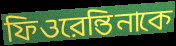
ফিওরেন্তিনাকে